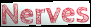
Nerves